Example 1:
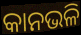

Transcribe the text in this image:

କାନଭଳି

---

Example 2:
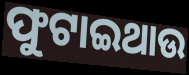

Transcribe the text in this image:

ଫୁଟାଇଥାଉ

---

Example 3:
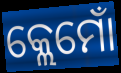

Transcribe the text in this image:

କ୍ଲେମୋଁ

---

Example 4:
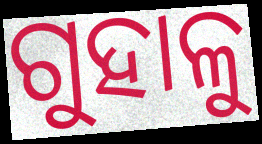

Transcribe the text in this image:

ଗୁହାଳୁ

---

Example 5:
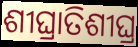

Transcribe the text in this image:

ଶୀଘ୍ରାତିଶୀଘ୍ର